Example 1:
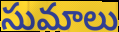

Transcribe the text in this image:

సుమాలు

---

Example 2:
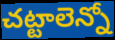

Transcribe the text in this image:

చట్టాలెన్నో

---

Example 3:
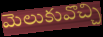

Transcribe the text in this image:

మెలుకువొచ్చి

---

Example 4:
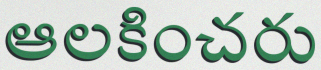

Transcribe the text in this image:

ఆలకించరు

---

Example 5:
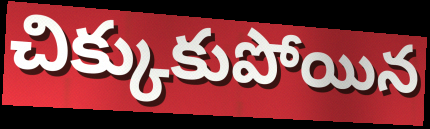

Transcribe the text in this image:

చిక్కుకుపోయిన